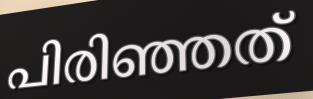
പിരിഞ്ഞത്